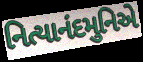
નિત્યાનંદમુનિએ